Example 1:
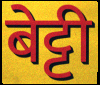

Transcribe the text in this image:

बेट्टी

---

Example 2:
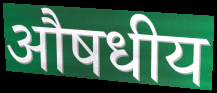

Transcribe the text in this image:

औषधीय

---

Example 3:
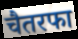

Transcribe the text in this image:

चैतरफा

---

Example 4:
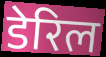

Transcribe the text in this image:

डेरिल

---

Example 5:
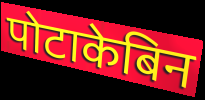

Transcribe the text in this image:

पोटाकेबिन